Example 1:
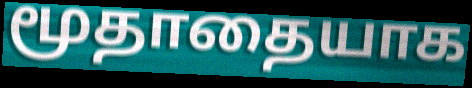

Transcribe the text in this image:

மூதாதையாக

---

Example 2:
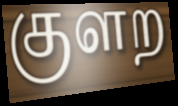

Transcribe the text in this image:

குளற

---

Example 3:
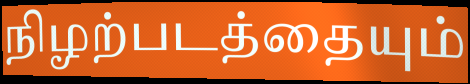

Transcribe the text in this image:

நிழற்படத்தையும்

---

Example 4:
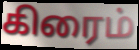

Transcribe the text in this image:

கிரைம்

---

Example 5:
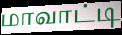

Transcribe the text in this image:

மாவாட்டி